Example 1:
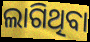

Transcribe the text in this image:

ଲାଗିଥିବା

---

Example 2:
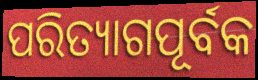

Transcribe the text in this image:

ପରିତ୍ୟାଗପୂର୍ବକ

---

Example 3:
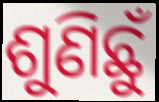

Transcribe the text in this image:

ଶୁଣିଛୁଁ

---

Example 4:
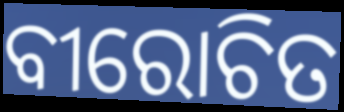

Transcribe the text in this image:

ବୀରୋଚିତ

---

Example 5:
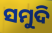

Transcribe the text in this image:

ସମୁଦି